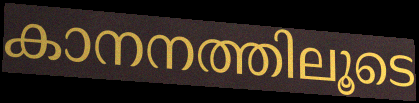
കാനനത്തിലൂടെ